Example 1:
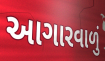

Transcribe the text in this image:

આગારવાળું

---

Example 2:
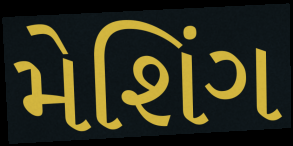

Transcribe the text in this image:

મેશિંગ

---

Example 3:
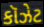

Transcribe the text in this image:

કૉઝેટ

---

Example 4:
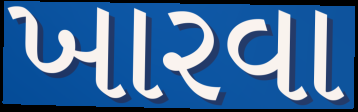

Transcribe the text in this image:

ખારવા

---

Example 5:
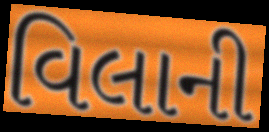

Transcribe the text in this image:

વિલાની